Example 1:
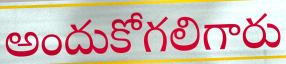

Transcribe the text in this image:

అందుకోగలిగారు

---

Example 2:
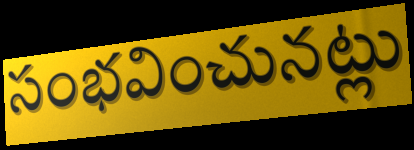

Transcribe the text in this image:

సంభవించునట్లు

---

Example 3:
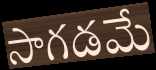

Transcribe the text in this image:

సాగడమే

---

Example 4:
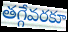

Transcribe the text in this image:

తగ్గేవరకూ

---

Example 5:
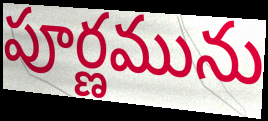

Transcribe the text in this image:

పూర్ణమును